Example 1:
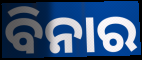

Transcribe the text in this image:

ବିନାର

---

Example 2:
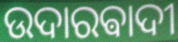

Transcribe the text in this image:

ଉଦାରଵାଦୀ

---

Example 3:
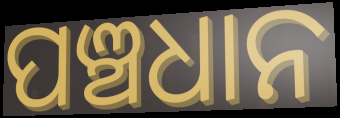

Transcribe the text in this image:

ପଞ୍ଚଧାନ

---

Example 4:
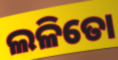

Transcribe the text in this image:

ଲଳିତୋ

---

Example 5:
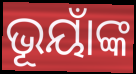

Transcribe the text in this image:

ଭୂୟାଁଙ୍କ